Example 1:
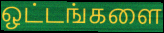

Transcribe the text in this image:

ஒட்டங்களை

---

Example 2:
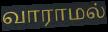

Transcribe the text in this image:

வாராமல்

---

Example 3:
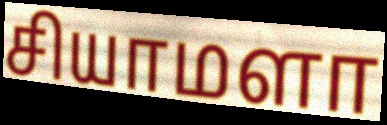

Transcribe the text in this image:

சியாமளா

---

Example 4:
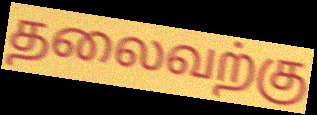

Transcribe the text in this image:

தலைவற்கு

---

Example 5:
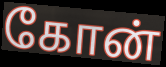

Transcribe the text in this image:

கோன்